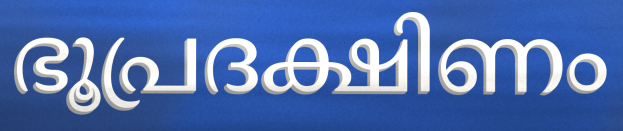
ഭൂപ്രദക്ഷിണം